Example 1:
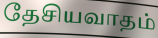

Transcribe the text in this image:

தேசியவாதம்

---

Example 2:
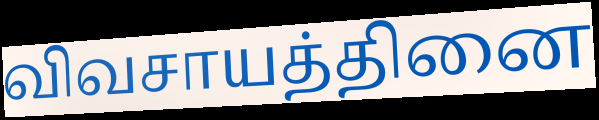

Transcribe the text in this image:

விவசாயத்தினை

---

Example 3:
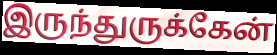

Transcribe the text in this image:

இருந்துருக்கேன்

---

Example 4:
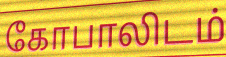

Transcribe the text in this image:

கோபாலிடம்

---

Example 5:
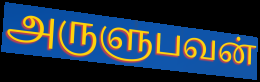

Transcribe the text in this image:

அருளுபவன்